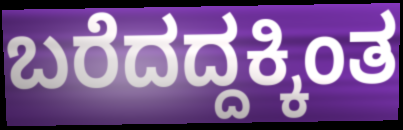
ಬರೆದದ್ದಕ್ಕಿಂತ